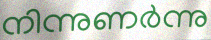
നിന്നുണർന്നു